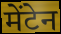
मेंटेन